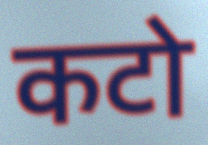
कटो